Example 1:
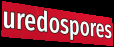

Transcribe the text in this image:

uredospores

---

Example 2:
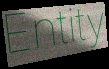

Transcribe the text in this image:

Entity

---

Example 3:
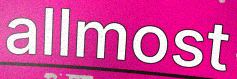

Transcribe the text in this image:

allmost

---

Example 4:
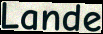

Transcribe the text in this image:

Lande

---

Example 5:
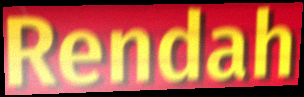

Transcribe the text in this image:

Rendah